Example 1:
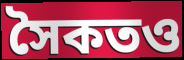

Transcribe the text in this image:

সৈকতও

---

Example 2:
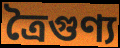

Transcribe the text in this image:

ত্রৈগুণ্য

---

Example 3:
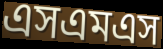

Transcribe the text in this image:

এসএমএস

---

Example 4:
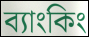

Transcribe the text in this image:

ব্যাংকিং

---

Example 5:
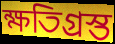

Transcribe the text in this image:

ক্ষতিগ্রস্ত